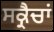
ਸਕ੍ਰੈਚਾਂ